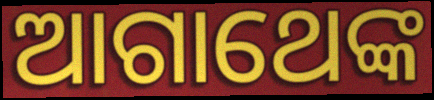
ଆଗାଥେଙ୍କ